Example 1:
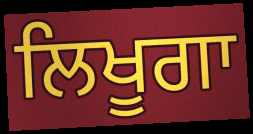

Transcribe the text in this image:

ਲਿਖੂਗਾ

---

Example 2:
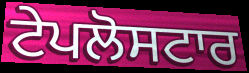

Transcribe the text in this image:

ਟੇਪਲੋਸਟਾਰ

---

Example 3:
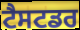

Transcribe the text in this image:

ਟੈਸਟਡਰ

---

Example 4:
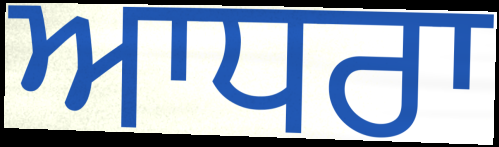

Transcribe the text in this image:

ਆਧਰਾ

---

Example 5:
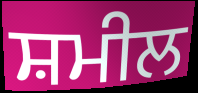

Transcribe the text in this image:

ਸ਼ਮੀਲ